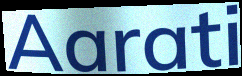
Aarati